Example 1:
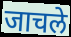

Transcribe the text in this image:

जाचले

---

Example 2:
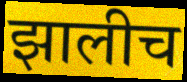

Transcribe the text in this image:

झालीच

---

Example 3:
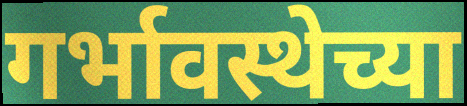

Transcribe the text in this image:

गर्भावस्थेच्या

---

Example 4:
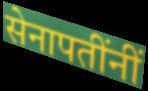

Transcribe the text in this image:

सेनापतींनीं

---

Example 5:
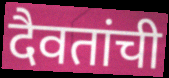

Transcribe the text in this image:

दैवतांची